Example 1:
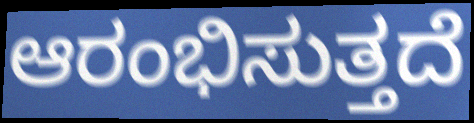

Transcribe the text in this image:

ಆರಂಭಿಸುತ್ತದೆ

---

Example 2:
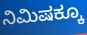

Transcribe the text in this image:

ನಿಮಿಷಕ್ಕೂ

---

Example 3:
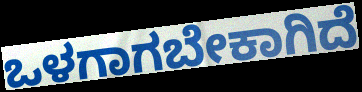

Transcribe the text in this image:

ಒಳಗಾಗಬೇಕಾಗಿದೆ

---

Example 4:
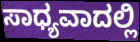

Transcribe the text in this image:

ಸಾಧ್ಯವಾದಲ್ಲಿ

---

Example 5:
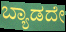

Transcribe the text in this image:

ಬ್ಯಾಡದೇ